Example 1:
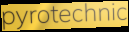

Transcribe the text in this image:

pyrotechnic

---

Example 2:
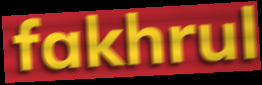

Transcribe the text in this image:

fakhrul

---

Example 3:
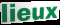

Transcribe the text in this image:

lieux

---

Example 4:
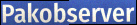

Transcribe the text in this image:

Pakobserver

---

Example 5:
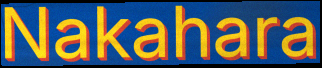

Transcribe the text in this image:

Nakahara